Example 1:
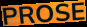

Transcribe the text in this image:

PROSE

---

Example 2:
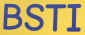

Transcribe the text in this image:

BSTI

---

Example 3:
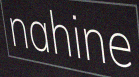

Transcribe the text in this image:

nahine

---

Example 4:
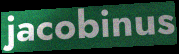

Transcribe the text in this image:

jacobinus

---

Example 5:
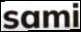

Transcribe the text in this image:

sami